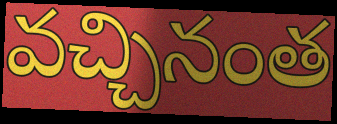
వచ్చినంత